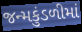
જન્મકુંડળીમાં